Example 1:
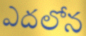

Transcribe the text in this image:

ఎదలోన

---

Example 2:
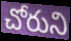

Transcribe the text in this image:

చోరుని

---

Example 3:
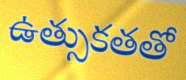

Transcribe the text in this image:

ఉత్సుకతతో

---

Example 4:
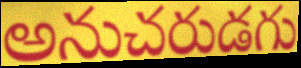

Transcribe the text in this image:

అనుచరుడగు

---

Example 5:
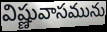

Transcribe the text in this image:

విష్ణువాసమును